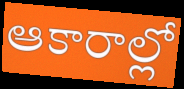
ఆకారాల్లో